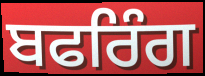
ਬਫਰਿੰਗ